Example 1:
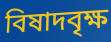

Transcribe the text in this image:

বিষাদবৃক্ষ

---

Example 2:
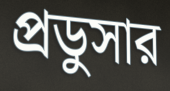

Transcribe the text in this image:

প্রডুসার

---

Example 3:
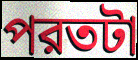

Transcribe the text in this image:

পরতটা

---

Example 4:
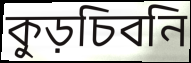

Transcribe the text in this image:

কুড়চিবনি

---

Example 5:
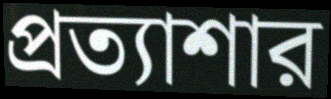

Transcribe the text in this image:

প্রত্যাশার